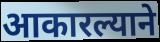
आकारल्याने